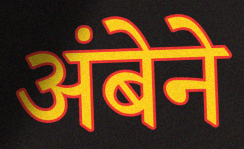
अंबेने